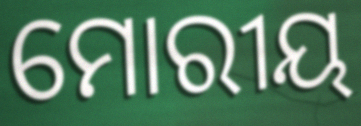
ମୋରୀୟ